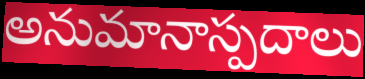
అనుమానాస్పదాలు